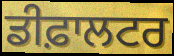
ਡੀਫ਼ਾਲਟਰ